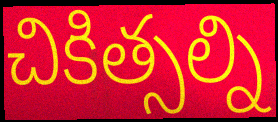
చికిత్సల్ని